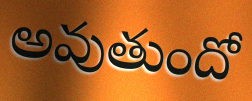
అవుతుందో